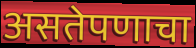
असतेपणाचा